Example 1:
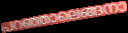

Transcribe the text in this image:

പറഞ്ഞാലെങ്ങനാ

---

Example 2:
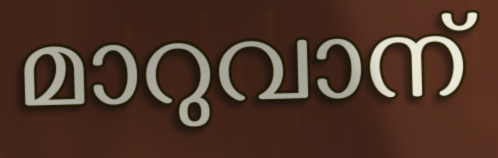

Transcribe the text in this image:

മാറുവാന്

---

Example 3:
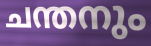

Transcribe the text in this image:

ചന്തനും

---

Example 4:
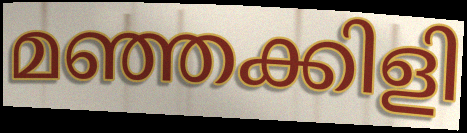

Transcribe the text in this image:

മഞ്ഞക്കിളി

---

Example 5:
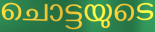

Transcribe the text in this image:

ചൊട്ടയുടെ